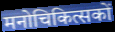
मनोचिकित्सकों